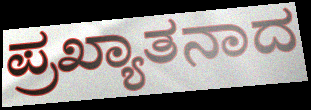
ಪ್ರಖ್ಯಾತನಾದ